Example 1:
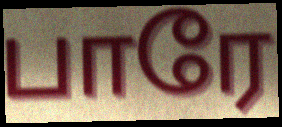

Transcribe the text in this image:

பாரே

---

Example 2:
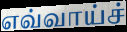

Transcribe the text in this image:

எவ்வாய்ச்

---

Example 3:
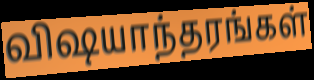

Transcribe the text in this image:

விஷயாந்தரங்கள்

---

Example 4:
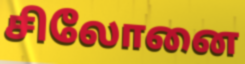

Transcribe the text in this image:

சிலோனை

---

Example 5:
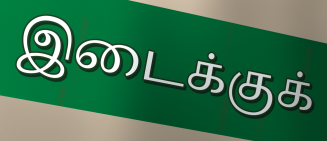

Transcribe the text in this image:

இடைக்குக்